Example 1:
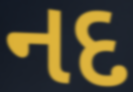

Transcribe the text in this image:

નદ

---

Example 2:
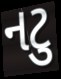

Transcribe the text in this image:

નટુ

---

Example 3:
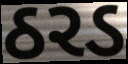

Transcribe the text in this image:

ઠરડ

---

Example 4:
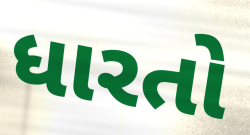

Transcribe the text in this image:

ધારતો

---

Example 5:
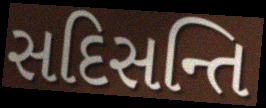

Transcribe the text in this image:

સદિસન્તિ